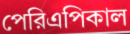
পেরিএপিকাল